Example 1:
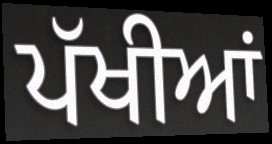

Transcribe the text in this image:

ਪੱਖੀਆਂ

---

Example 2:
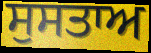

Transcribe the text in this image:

ਸੁਸਤਾਅ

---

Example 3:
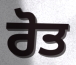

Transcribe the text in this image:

ਰੋਤ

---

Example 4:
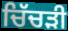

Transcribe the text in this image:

ਚਿੱਚੜੀ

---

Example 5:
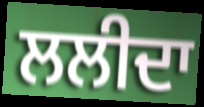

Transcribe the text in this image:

ਲਲੀਦਾ